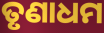
ତୃଣାଧମ